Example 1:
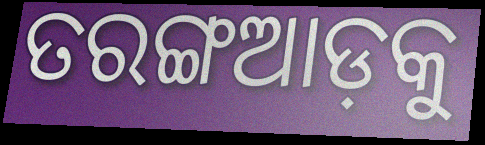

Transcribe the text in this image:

ତରଙ୍ଗଆଡ଼କୁ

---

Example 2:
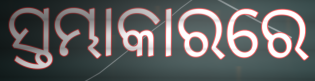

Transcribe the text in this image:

ସ୍ତମ୍ଭାକାରରେ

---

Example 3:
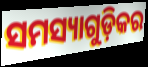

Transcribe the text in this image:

ସମସ୍ୟାଗୁଡ଼ିକର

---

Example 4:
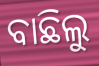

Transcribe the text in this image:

ବାଛିଲୁ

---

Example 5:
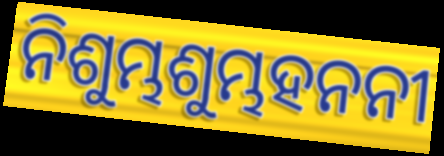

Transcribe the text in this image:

ନିଶୁମ୍ଭଶୁମ୍ଭହନନୀ